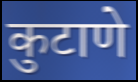
कुटाणे